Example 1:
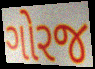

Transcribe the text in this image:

ગોરજ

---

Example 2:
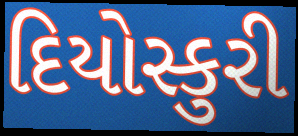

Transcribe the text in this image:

દિયોસ્કુરી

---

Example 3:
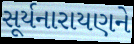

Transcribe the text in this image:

સૂર્યનારાયણને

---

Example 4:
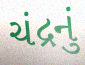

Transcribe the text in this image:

ચંદ્રનું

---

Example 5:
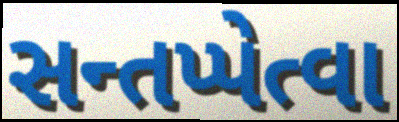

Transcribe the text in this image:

સન્તપ્પેત્વા